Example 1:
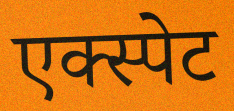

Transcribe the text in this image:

एक्स्पेट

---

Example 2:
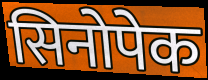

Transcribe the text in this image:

सिनोपेक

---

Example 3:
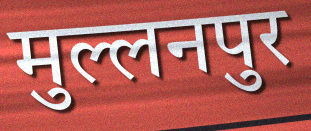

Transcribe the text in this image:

मुल्लनपुर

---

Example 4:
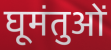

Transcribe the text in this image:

घूमंतुओं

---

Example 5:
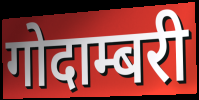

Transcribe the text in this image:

गोदाम्बरी